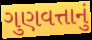
ગુણવત્તાનું